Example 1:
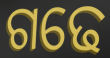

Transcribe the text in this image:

ଗଢେ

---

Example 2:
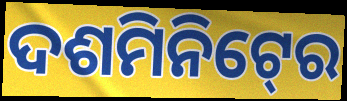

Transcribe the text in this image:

ଦଶମିନିଟ୍‍ରେ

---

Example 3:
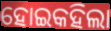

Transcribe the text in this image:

ହୋଇକହିଲା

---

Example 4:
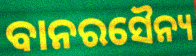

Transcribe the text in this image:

ବାନରସୈନ୍ୟ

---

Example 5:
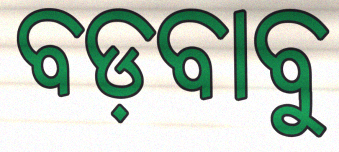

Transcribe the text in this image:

ବଡ଼ବାବୁ